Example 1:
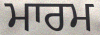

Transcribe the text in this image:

ਮਾਰਮ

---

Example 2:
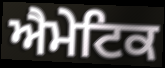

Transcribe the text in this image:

ਐਮੇਟਿਕ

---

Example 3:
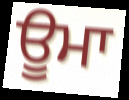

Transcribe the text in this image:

ਊਮਾ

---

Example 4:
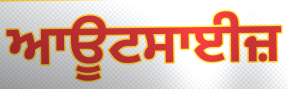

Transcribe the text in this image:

ਆਊਟਸਾਈਜ਼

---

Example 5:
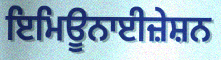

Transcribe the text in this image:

ਇਮਿਊਨਾਈਜ਼ੇਸ਼ਨ